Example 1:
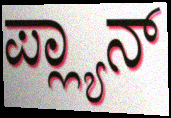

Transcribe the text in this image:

ಪ್ಲ್ಯಾನ್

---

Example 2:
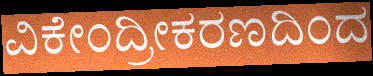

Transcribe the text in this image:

ವಿಕೇಂದ್ರೀಕರಣದಿಂದ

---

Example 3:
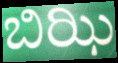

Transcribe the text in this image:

ಬಿಝಿ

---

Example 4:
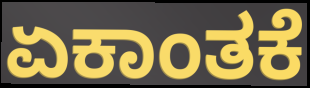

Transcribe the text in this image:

ಏಕಾಂತಕೆ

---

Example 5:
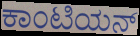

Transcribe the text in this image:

ಕಾಂಟಿಯನ್